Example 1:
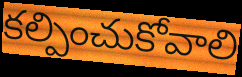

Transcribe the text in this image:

కల్పించుకోవాలి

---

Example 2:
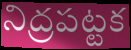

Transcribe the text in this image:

నిద్రపట్టక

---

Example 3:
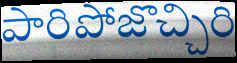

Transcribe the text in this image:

పారిపోజొచ్చిరి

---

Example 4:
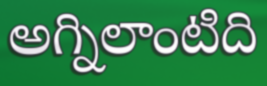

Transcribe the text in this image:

అగ్నిలాంటిది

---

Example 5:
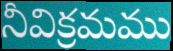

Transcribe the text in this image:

నీవిక్రమము